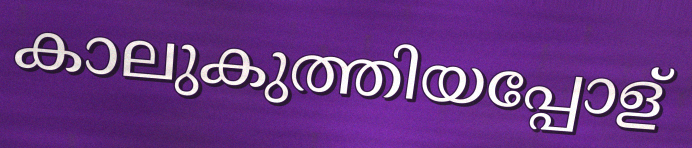
കാലുകുത്തിയപ്പോള്